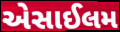
એસાઈલમ